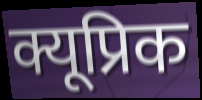
क्यूप्रिक